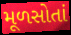
મૂળસોતાં